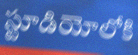
స్టూడియోలోకి